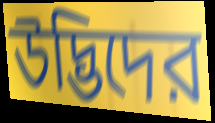
উদ্ভিদের